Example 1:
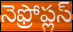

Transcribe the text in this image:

నెఫ్రోప్లస్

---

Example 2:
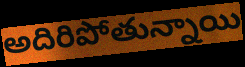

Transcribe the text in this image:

అదిరిపోతున్నాయి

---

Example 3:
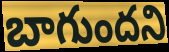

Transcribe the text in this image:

బాగుందని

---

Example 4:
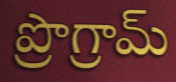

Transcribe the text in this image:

ప్రొగ్రామ్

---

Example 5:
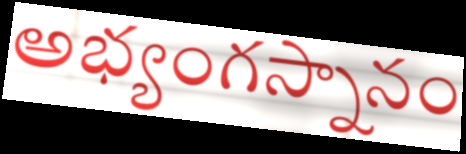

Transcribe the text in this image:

అభ్యంగస్నానం